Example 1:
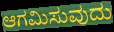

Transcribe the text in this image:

ಆಗಮಿಸುವುದು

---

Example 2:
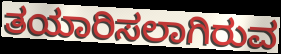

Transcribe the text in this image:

ತಯಾರಿಸಲಾಗಿರುವ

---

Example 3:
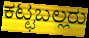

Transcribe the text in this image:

ಕಟ್ಟಬಲ್ಲರು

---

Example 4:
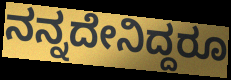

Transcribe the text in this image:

ನನ್ನದೇನಿದ್ದರೂ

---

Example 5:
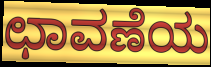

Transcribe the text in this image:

ಛಾವಣೆಯ